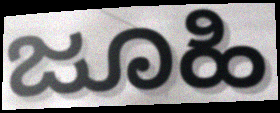
ಜೂಹಿ